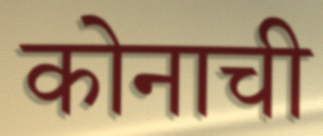
कोनाची